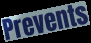
Prevents